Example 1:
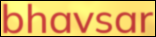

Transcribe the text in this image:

bhavsar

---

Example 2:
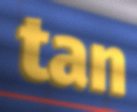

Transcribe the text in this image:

tan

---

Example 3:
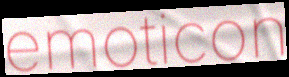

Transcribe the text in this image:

emoticon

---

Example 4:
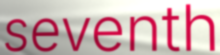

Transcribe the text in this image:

seventh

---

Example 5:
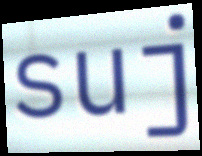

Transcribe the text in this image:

suj